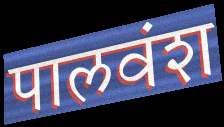
पालवंश